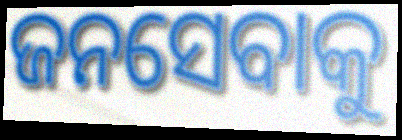
ଜନସେବାକୁ